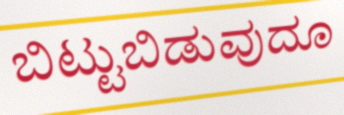
ಬಿಟ್ಟುಬಿಡುವುದೂ